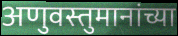
अणुवस्तुमानांच्या